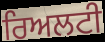
ਰਿਅਲਟੀ